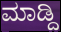
ಮಾಡ್ದಿ